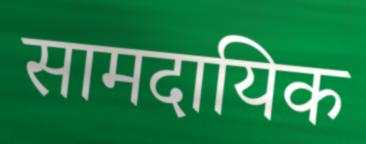
सामदायिक